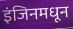
इंजिनमधून